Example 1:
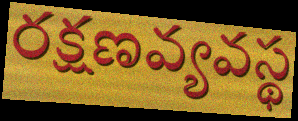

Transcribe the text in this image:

రక్షణవ్యవస్థ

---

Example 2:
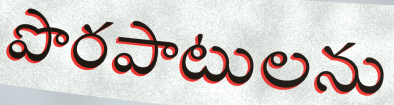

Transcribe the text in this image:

పొరపాటులను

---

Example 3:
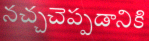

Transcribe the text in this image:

నచ్చచెప్పడానికి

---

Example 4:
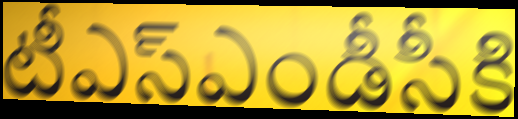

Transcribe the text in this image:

టీఎస్ఎండీసీకి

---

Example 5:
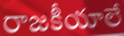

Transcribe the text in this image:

రాజకీయాలే